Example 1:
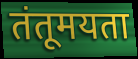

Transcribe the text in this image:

तंतूमयता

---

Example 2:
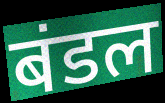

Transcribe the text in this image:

बंडल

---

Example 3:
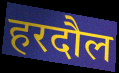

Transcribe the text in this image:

हरदौल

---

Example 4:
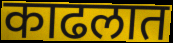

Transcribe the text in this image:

काढलात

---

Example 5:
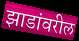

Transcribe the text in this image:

झाडांवरील